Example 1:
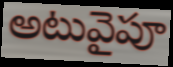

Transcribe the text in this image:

అటువైపూ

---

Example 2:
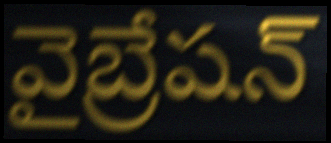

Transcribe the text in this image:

వైబ్రేషన్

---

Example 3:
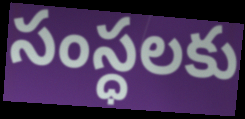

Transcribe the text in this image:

సంస్ధలకు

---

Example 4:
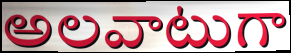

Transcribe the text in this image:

అలవాటుగా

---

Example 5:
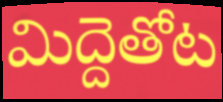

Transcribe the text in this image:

మిద్దెతోట